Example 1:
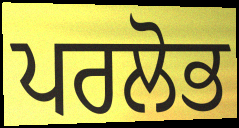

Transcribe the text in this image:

ਪਰਲੋਭ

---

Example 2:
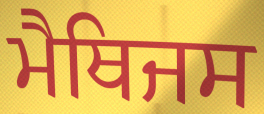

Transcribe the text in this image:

ਮੈਥਿਜਸ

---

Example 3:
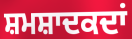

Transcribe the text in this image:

ਸ਼ਮਸ਼ਾਦਕਦਾਂ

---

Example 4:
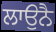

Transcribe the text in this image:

ਲਾਉਨੈ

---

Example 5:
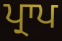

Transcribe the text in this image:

ਪ੍ਰਾਪ